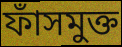
ফাঁসমুক্ত